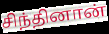
சிந்தினான்